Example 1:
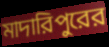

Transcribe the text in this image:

মাদারিপুরের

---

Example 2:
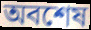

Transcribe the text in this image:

অবশেষ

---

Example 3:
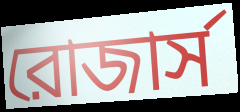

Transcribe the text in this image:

রোজার্স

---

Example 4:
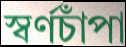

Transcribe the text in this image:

স্বর্ণচাঁপা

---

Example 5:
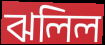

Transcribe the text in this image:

ঝলিল